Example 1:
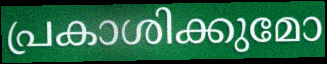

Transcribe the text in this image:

പ്രകാശിക്കുമോ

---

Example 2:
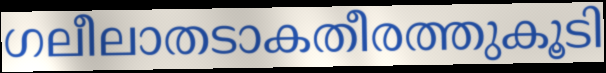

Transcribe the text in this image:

ഗലീലാതടാകതീരത്തുകൂടി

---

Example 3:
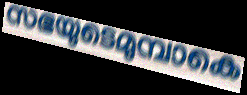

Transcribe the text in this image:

സഭയുടെമുമ്പാകെ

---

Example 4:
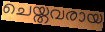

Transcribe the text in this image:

ചെയ്തവരായ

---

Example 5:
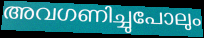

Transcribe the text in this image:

അവഗണിച്ചുപോലും